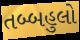
તબ્બહુલો